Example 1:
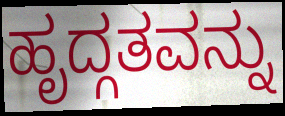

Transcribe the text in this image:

ಹೃದ್ಗತವನ್ನು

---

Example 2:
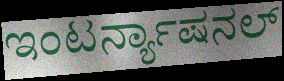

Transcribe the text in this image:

ಇಂಟರ್ನ್ಯಾಷನಲ್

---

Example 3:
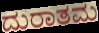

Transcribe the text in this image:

ದುರಾತಮ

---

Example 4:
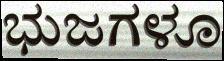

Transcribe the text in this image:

ಭುಜಗಳೂ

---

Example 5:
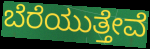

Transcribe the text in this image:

ಬೆರೆಯುತ್ತೇವೆ